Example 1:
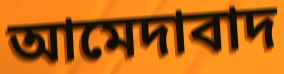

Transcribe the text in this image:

আমেদাবাদ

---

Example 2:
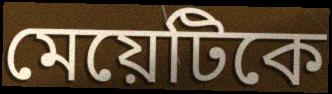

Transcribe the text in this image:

মেয়েটিকে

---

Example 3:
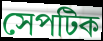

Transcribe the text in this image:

সেপটিক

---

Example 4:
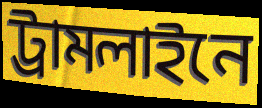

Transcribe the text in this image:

ট্রামলাইনে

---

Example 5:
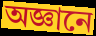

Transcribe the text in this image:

অজ্ঞানে